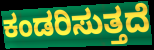
ಕಂಡರಿಸುತ್ತದೆ